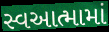
સ્વઆત્મામાં